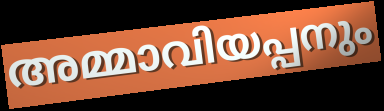
അമ്മാവിയപ്പനും